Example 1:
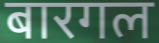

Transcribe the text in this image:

बारगल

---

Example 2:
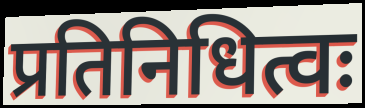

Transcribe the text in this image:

प्रतिनिधित्वः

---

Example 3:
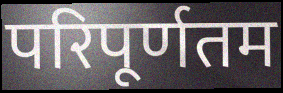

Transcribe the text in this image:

परिपूर्णतम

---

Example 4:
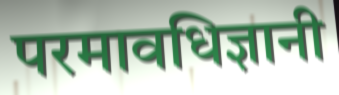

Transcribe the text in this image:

परमावधिज्ञानी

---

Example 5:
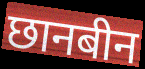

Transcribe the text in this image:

छानबीन